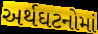
અર્થઘટનોમાં